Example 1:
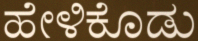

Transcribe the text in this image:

ಹೇಳಿಕೊಡು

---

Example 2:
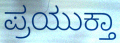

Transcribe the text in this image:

ಪ್ರಯುಕ್ತಾ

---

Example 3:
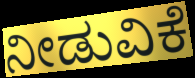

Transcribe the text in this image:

ನೀಡುವಿಕೆ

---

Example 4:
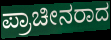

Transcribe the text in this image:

ಪ್ರಾಚೀನರಾದ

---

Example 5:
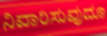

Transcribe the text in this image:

ನಿವಾರಿಸುವುದೂ